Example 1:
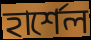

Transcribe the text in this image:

হার্শেল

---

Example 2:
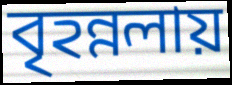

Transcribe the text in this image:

বৃহন্নলায়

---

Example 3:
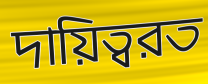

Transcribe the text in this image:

দায়িত্বরত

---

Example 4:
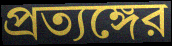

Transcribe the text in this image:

প্রত্যঙ্গের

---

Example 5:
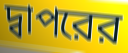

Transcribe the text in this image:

দ্বাপরের